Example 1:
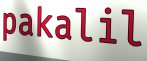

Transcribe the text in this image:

pakalil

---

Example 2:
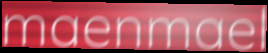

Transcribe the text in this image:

maenmael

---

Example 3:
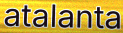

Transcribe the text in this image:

atalanta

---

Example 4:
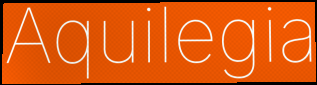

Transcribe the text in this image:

Aquilegia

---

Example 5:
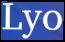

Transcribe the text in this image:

Lyo